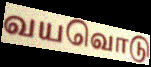
வயவொடு